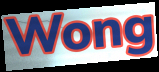
Wong